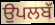
ਉਪਲਬੱ